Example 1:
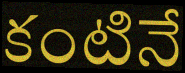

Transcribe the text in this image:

కంటినే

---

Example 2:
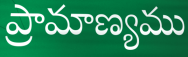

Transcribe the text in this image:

ప్రామాణ్యము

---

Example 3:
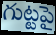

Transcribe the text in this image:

గుట్టపై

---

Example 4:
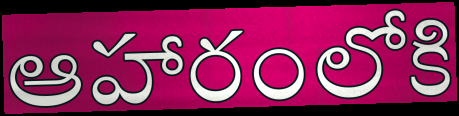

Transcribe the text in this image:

ఆహారంలోకి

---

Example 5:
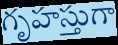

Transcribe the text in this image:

గృహస్తుగా